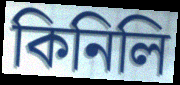
কিনিলি